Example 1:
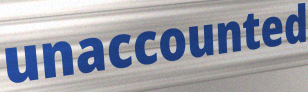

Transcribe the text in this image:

unaccounted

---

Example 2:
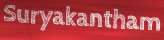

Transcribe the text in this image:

Suryakantham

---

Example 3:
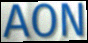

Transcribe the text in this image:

AON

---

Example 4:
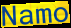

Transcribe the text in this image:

Namo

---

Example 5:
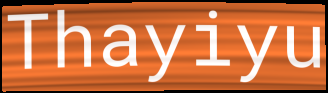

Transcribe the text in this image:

Thayiyu